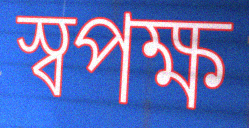
স্বপক্ষ